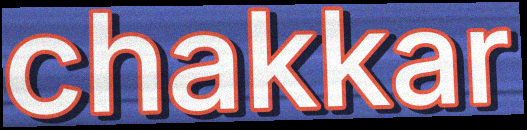
chakkar